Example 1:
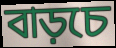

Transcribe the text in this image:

বাড়চে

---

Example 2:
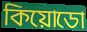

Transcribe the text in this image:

কিয়োডো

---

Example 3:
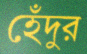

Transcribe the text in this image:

হেঁদুর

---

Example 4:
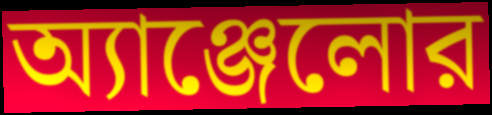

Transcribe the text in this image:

অ্যাঞ্জেলোর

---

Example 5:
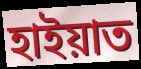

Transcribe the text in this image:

হাইয়াত